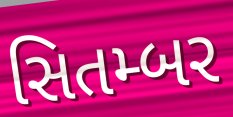
સિતમ્બર